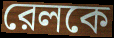
রেলকে